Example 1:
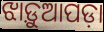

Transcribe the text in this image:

ଝାଡ଼ୁଆପଡ଼ା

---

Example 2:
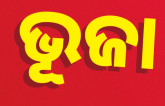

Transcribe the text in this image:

ଭୂଜା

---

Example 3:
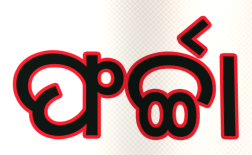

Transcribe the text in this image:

ଫର୍ଚ୍ଚା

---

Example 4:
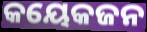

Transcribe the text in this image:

କୟେକଜନ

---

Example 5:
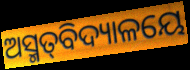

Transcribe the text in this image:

ଅସ୍ମତ୍‌ବିଦ୍ୟାଳୟେ